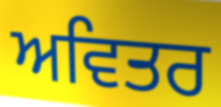
ਅਵਿਤਰ